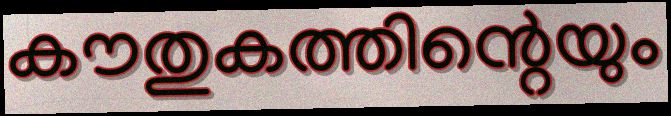
കൗതുകത്തിന്റെയും